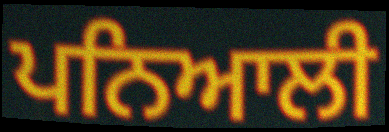
ਪਨਿਆਲੀ